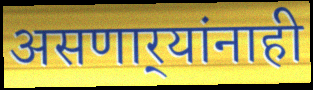
असणार्यांनाही